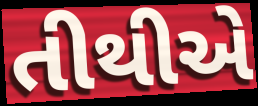
તીથીએ